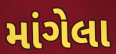
માંગેલા